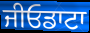
ਜੀਓਡਾਟਾ